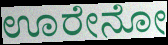
ಊರೇನೋ